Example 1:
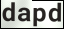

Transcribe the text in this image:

dapd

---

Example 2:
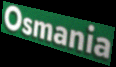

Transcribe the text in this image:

Osmania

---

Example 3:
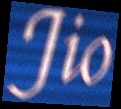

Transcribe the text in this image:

Jio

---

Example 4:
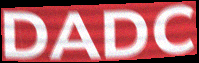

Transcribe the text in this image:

DADC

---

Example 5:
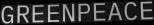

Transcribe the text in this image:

GREENPEACE